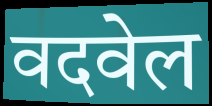
वदवेल